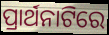
ପ୍ରାର୍ଥନାଟିରେ